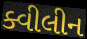
ક્વીલીન